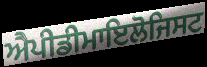
ਐਪੀਡੀਮਾਇਲੋਜਿਸਟ